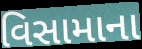
વિસામાના